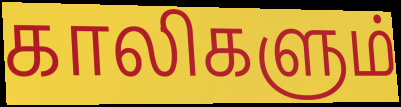
காலிகளும்